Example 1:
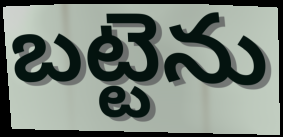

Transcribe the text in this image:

బట్టెను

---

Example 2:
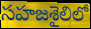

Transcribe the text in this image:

సహజశైలిలో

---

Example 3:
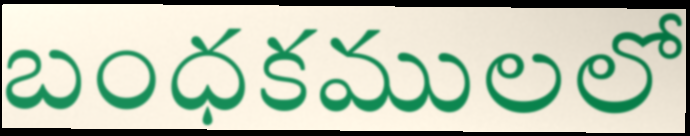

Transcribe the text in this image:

బంధకములలో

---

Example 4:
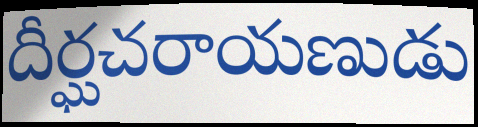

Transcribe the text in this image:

దీర్ఘచరాయణుడు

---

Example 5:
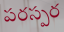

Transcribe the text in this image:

పరస్పర